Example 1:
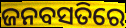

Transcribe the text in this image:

ଜନବସତିରେ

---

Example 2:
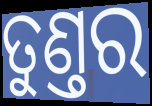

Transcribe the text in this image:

ତୁଣ୍ତର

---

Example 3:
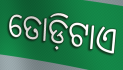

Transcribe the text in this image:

ତୋଡ଼ିଟାଏ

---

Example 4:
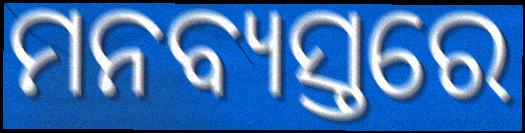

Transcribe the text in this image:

ମନବ୍ୟସ୍ତରେ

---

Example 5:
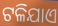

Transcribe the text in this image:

ଟଳିଯାଏ